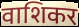
वाशिकर